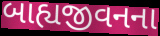
બાહ્યજીવનના